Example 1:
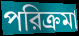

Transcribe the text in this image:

পরিক্রমা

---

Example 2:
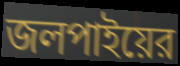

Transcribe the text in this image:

জলপাইয়ের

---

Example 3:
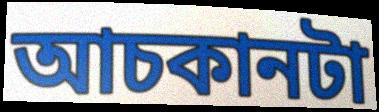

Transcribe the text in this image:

আচকানটা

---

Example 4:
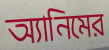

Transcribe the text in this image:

অ্যানিমের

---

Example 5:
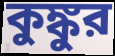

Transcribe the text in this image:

কুঙ্কুর